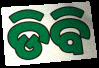
ଡିବି